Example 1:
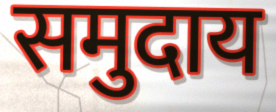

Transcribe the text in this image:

समुदाय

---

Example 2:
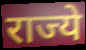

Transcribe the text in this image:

राज्ये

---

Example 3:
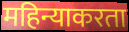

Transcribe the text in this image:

महिन्याकरता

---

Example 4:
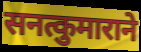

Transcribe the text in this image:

सनत्कुमाराने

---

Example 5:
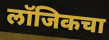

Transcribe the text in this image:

लॉजिकचा